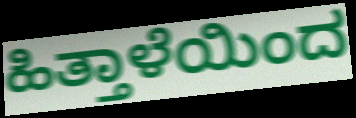
ಹಿತ್ತಾಳೆಯಿಂದ